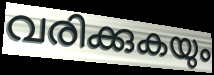
വരിക്കുകയും